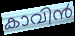
കാവിൻ